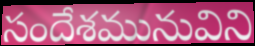
సందేశమునువిని